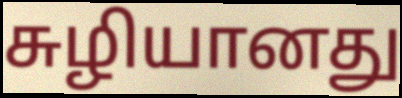
சுழியானது